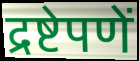
द्रष्टेपणें